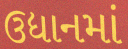
ઉદ્યાનમાં